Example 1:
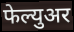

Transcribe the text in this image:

फेल्युअर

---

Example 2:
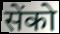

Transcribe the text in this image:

सेंको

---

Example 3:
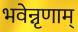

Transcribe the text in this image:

भवेन्नृणाम्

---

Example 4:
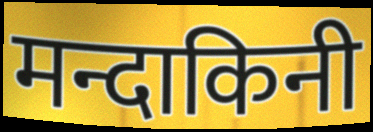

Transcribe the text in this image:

मन्दाकिनी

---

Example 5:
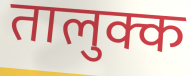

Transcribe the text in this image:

तालुक्क